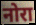
नोरा